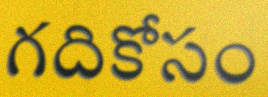
గదికోసం